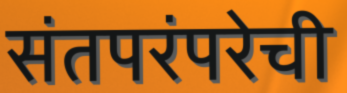
संतपरंपरेची